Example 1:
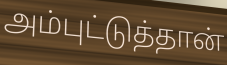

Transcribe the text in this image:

அம்புட்டுத்தான்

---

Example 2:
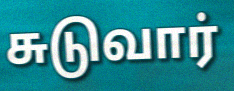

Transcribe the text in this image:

சுடுவார்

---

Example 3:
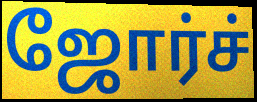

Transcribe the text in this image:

ஜோர்ச்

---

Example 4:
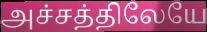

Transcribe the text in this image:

அச்சத்திலேயே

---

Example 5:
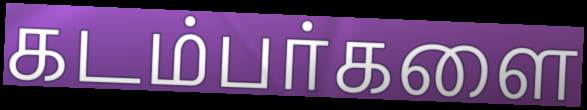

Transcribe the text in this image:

கடம்பர்களை